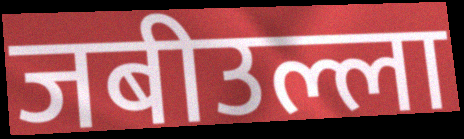
जबीउल्ला